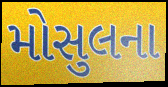
મોસુલના